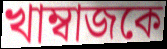
খাম্বাজকে